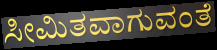
ಸೀಮಿತವಾಗುವಂತೆ